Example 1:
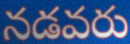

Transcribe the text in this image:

నడవరు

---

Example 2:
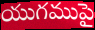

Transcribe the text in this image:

యుగముపై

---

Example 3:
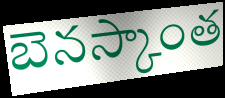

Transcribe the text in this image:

బెనస్కాంత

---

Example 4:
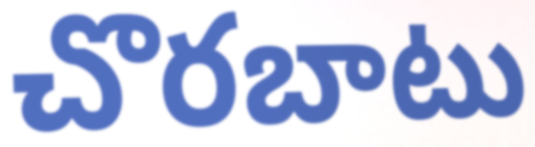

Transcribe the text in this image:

చొరబాటు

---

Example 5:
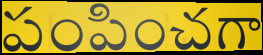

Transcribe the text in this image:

పంపించగా